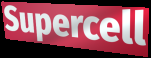
Supercell